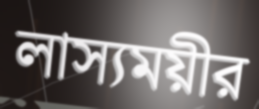
লাস্যময়ীর